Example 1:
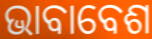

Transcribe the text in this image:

ଭାବାବେଶ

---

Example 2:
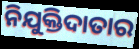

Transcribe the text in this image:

ନିଯୁକ୍ତିଦାତାର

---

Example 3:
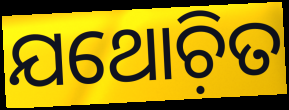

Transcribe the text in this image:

ଯଥୋଚ଼ିତ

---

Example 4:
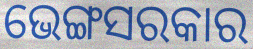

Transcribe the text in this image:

ଭେଙ୍ଗସରକାର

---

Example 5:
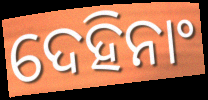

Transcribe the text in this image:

ଦେହିନାଂ